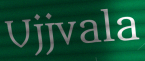
Ujjvala